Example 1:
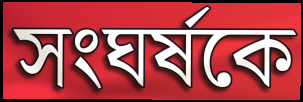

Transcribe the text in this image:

সংঘর্ষকে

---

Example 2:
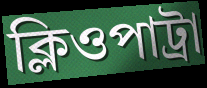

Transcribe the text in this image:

ক্লিওপাট্রা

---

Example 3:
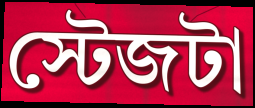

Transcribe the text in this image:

স্টেজটা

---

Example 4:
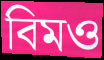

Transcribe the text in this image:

বিমও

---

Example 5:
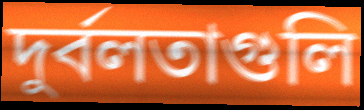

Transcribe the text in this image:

দুর্বলতাগুলি